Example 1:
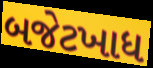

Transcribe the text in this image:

બજેટખાધ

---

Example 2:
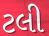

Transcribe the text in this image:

ટલી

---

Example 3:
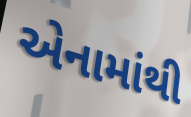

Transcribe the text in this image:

એનામાંથી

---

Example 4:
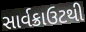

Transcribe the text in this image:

સાર્વક્રાઉટથી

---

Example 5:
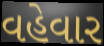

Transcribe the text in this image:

વહેવાર